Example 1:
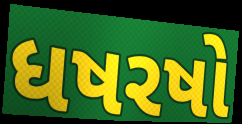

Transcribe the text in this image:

ધષરષો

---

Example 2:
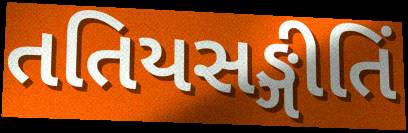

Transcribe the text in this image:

તતિયસઙ્ગીતિં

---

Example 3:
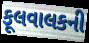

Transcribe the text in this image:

ફૂલવાલકની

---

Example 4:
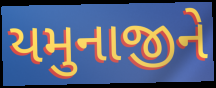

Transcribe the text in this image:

યમુનાજીને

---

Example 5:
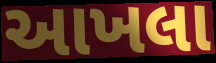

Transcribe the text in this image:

આખલા